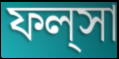
ফল্‌সা